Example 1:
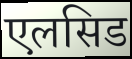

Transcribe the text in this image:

एलसिड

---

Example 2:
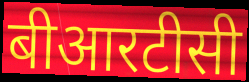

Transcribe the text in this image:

बीआरटीसी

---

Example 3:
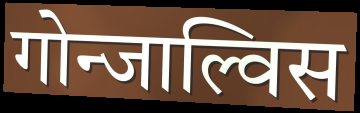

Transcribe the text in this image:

गोन्जाल्विस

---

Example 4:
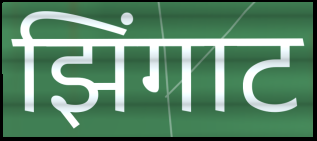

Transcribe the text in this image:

झिंगाट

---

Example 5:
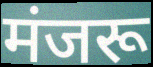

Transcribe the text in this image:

मंजरू